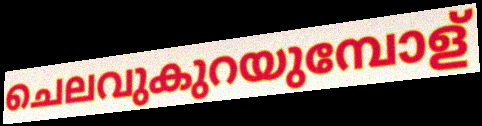
ചെലവുകുറയുമ്പോള്